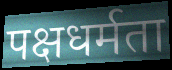
पक्षधर्मता